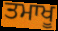
ਤਮਾਖੂ